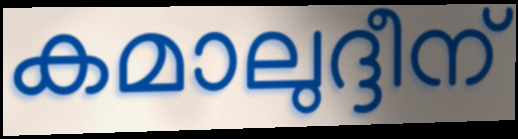
കമാലുദ്ദീന്